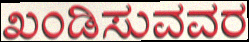
ಖಂಡಿಸುವವರ